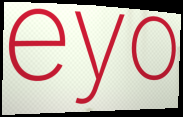
eyo